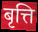
बृत्ति